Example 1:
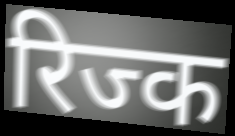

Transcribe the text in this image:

रिज्क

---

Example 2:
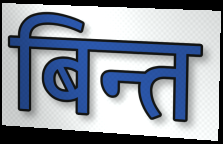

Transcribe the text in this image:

बिन्त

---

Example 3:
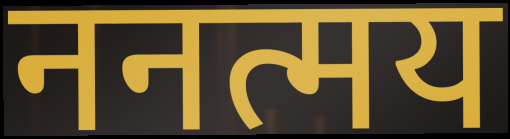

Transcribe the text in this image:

ननत्मय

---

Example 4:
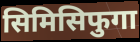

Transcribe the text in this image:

सिमिसिफुगा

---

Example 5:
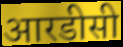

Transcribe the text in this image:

आरडीसी